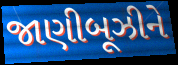
જાણીબૂઝીને